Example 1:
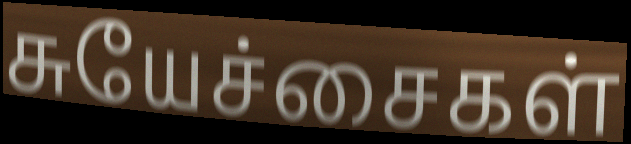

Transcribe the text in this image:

சுயேச்சைகள்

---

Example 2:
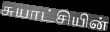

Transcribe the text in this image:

சுயாட்சியின்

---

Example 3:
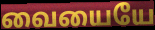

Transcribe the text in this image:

வையையே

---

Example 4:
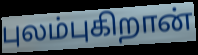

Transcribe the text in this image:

புலம்புகிறான்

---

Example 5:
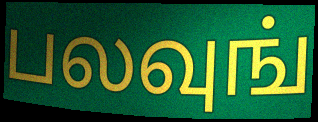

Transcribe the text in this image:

பலவுங்